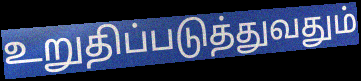
உறுதிப்படுத்துவதும்